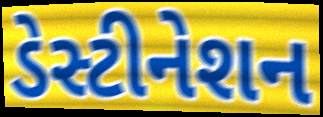
ડેસ્ટીનેશન